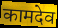
कामदेव